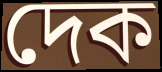
দেক